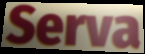
Serva